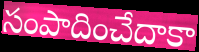
సంపాదించేదాకా